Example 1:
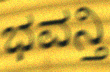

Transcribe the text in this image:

ಭವನ್ತಿ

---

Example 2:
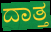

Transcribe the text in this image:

ದಾತ್ತ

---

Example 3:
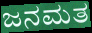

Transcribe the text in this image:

ಜನಮತ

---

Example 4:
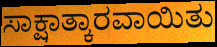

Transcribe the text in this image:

ಸಾಕ್ಷಾತ್ಕಾರವಾಯಿತು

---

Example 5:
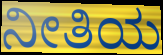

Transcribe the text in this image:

ನೀತಿಯ